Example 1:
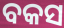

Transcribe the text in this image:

ବକସ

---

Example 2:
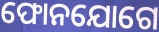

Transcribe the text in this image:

ଫୋନଯୋଗେ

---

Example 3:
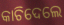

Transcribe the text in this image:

କାଚିଦେଲେ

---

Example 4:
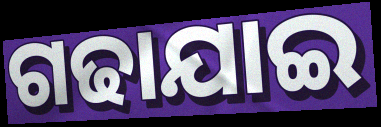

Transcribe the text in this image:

ଗଢାଯାଇ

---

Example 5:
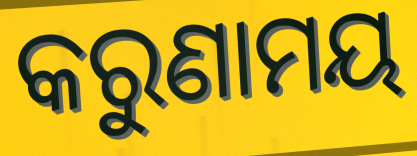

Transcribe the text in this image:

କରୁଣାମୟ